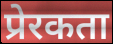
प्रेरकता